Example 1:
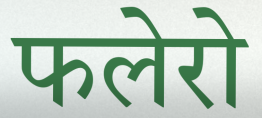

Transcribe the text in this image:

फलेरो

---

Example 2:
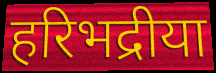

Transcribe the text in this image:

हरिभद्रीया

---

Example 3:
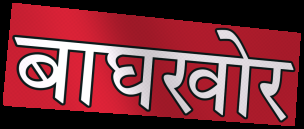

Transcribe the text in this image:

बाघखोर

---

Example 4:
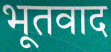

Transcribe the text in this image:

भूतवाद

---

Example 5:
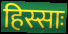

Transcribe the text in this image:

हिस्साः